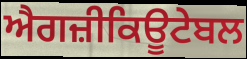
ਐਗਜ਼ੀਕਿਊਟੇਬਲ